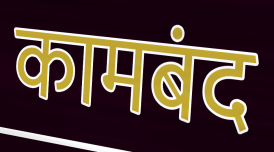
कामबंद